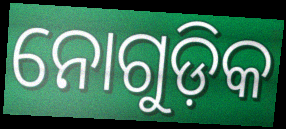
ନୋଗୁଡ଼ିକ